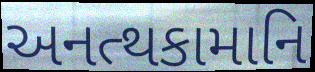
અનત્થકામાનિ